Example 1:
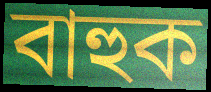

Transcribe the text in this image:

বাহুক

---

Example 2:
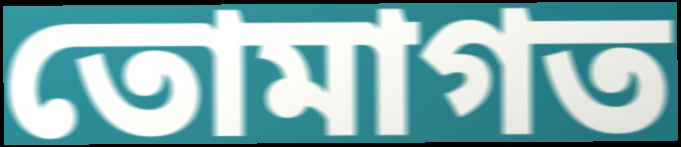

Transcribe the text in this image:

তোমাগত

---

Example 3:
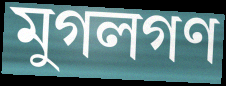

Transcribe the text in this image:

মুগলগণ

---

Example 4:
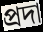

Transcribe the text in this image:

প্রদা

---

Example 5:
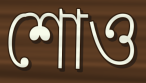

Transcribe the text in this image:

শোও